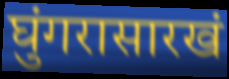
घुंगरासारखं